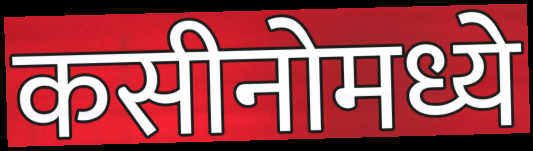
कसीनोमध्ये